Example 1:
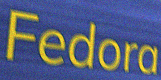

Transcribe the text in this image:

Fedora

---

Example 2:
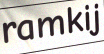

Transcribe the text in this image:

ramkij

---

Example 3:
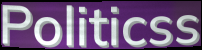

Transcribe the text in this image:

Politicss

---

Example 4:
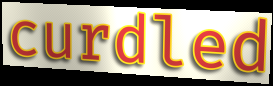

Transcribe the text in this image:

curdled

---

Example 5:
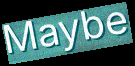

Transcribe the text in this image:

Maybe